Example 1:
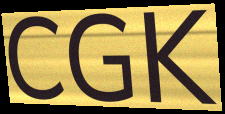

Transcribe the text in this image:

CGK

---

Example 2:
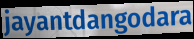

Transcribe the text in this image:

jayantdangodara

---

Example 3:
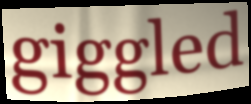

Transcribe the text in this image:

giggled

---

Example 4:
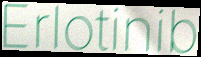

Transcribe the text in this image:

Erlotinib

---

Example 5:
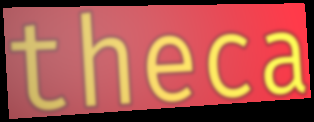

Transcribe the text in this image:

theca